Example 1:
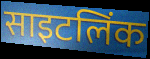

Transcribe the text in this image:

साइटलिंक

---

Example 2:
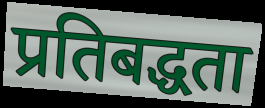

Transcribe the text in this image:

प्रतिबद्धता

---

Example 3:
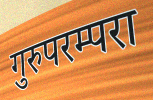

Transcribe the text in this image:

गुरुपरम्परा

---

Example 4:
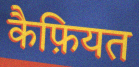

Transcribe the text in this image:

कैफ़ियत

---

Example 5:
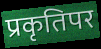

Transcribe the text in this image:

प्रकृतिपर